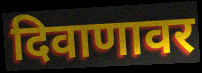
दिवाणावर